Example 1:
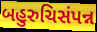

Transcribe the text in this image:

બહુરુચિસંપન્ન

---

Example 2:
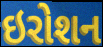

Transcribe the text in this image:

ઇરોશન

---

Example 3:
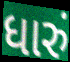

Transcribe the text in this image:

ધારું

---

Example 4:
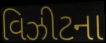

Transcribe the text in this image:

વિઝીટના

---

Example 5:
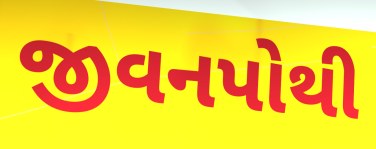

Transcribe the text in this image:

જીવનપોથી